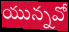
యున్నవో